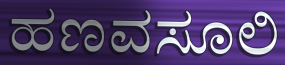
ಹಣವಸೂಲಿ